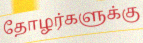
தோழர்களுக்கு